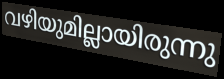
വഴിയുമില്ലായിരുന്നു